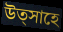
উত্সাহে